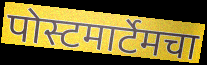
पोस्टमार्टेमचा